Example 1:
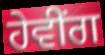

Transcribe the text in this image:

ਹੇਵੀੰਗ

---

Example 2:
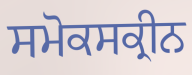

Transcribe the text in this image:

ਸਮੋਕਸਕ੍ਰੀਨ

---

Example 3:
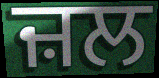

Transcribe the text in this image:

ਜ਼ਲ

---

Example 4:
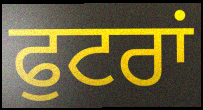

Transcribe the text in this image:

ਫੁਟਰਾਂ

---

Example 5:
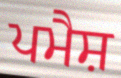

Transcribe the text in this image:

ਪਮੈਸ਼